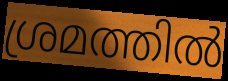
ശ്രമത്തിൽ